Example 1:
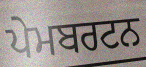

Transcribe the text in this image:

ਪੇਮਬਰਟਨ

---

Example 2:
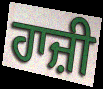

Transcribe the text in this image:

ਹਾਜ਼ੀ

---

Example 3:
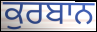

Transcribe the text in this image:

ਕੁਰਬਾਨ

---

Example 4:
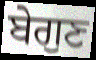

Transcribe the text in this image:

ਬੇਗੁਣ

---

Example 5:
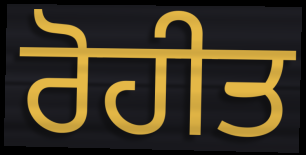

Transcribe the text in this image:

ਰੋਹੀਤ